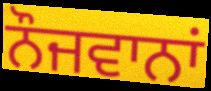
ਨੌਜਵਾਨਾਂ